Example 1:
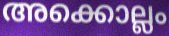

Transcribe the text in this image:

അക്കൊല്ലം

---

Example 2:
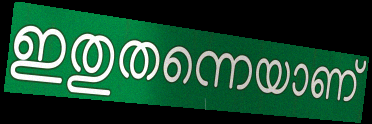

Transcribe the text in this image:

ഇതുതന്നെയാണ്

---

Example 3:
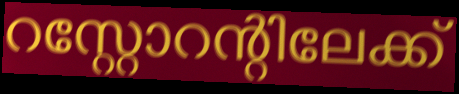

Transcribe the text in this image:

റസ്റ്റോറന്റിലേക്ക്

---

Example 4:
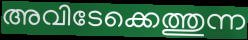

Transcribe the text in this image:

അവിടേക്കെത്തുന്ന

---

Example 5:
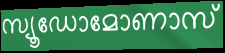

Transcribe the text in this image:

സ്യൂഡോമോണാസ്